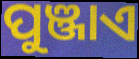
ପୁଞ୍ଜାଏ